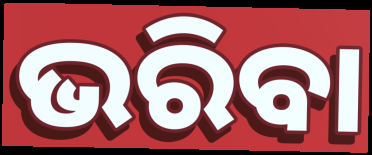
ଭରିବା